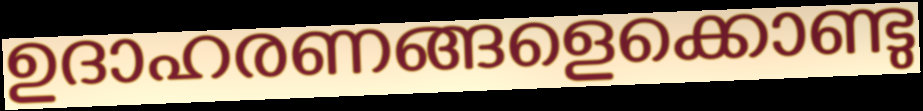
ഉദാഹരണങ്ങളെക്കൊണ്ടു